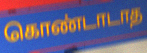
கொண்டாடாத